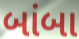
બાંબા